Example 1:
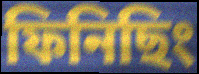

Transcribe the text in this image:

ফিনিছিং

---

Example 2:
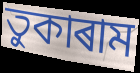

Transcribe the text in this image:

তুকাৰাম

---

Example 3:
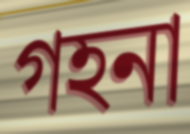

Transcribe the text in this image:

গহনা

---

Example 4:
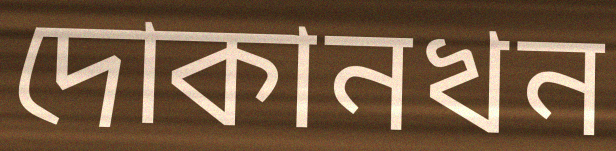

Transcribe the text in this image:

দোকানখন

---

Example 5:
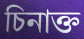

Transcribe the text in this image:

চিনাক্ত